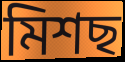
মিশছ